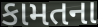
કામતના